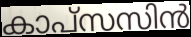
കാപ്സസിൻ